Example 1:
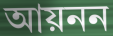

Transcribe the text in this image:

আয়নন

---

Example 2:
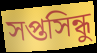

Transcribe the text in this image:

সপ্তসিন্ধু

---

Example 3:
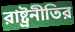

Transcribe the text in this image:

রাষ্ট্রনীতির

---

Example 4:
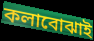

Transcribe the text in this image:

কলাবোঝাই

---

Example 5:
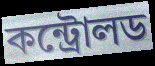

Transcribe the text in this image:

কন্ট্রোলড